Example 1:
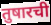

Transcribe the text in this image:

तुषारची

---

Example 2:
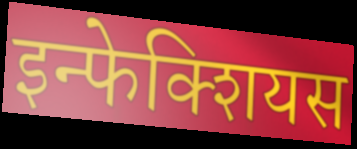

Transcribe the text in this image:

इन्फेक्शियस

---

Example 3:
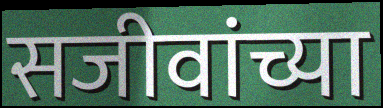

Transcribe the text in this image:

सजीवांच्या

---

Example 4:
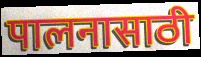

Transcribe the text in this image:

पालनासाठी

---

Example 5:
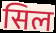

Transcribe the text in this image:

सिल